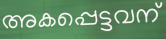
അകപ്പെട്ടവന്